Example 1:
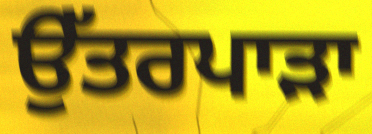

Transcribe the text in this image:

ਉੱਤਰਪਾੜਾ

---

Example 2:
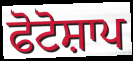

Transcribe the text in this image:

ਫੋਟੋਸ਼ਾਪ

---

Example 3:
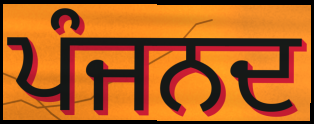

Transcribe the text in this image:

ਪੰਜਨਦ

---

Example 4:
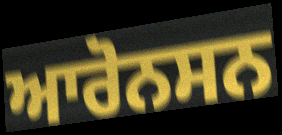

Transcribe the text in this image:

ਆਰੋਨਸਨ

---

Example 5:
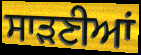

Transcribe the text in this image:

ਸਾੜਣੀਆਂ